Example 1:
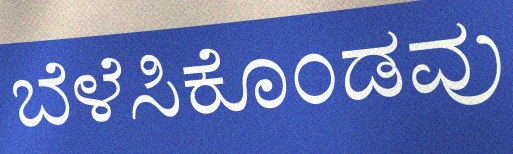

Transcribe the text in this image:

ಬೆಳೆಸಿಕೊಂಡವು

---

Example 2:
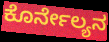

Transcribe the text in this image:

ಕೊರ್ನೇಲ್ಯನ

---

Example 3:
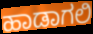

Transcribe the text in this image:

ಹಾಡಾಗಲಿ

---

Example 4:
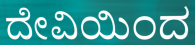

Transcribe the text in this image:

ದೇವಿಯಿಂದ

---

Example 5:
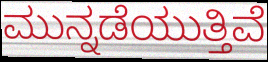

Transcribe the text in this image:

ಮುನ್ನಡೆಯುತ್ತಿವೆ